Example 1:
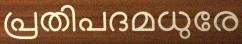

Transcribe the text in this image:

പ്രതിപദമധുരേ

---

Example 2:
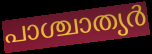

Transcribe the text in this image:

പാശ്ചാത്യർ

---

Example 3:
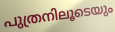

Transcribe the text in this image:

പുത്രനിലൂടെയും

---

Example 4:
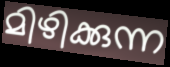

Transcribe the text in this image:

മിഴിക്കുന്ന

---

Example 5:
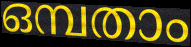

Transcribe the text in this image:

ഒമ്പതാം